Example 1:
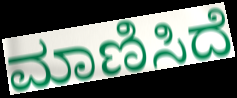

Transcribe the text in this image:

ಮಾಣಿಸಿದೆ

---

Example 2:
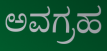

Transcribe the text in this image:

ಅವಗ್ರಹ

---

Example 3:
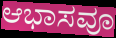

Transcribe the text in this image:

ಆಭಾಸವೂ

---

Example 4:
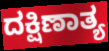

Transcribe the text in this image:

ದಕ್ಷಿಣಾತ್ಯ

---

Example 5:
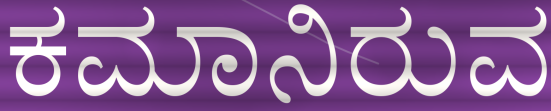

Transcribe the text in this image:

ಕಮಾನಿರುವ